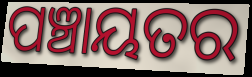
ପଞ୍ଚାୟତର